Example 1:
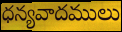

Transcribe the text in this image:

ధన్యవాదములు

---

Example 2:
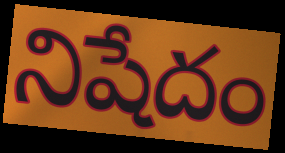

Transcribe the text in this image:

నిషేదం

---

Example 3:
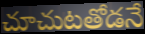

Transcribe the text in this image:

చూచుటతోడనే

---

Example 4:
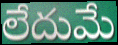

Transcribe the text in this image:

లేదుమే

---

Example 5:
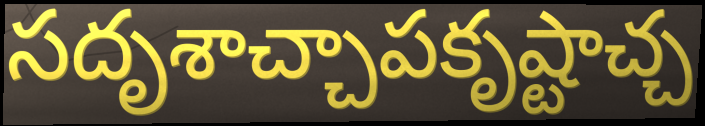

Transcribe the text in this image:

సదృశాచ్చాపకృష్టాచ్చ